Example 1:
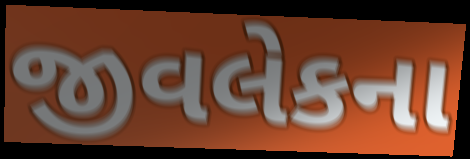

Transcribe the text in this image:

જીવલેકના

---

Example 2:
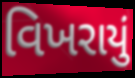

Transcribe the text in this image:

વિખરાયું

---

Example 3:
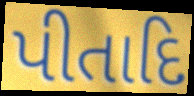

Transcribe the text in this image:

પીતાદિ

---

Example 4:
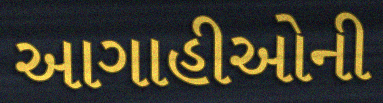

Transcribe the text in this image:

આગાહીઓની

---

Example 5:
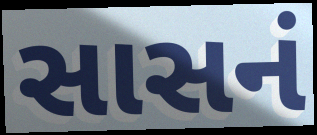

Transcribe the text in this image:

સાસનં